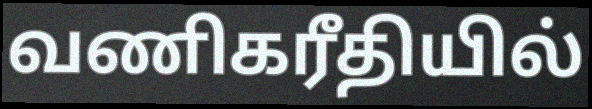
வணிகரீதியில்